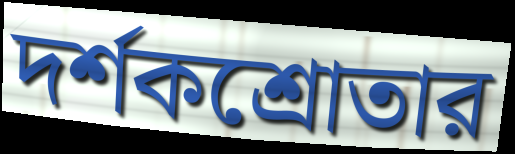
দর্শকশ্রোতার